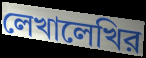
লেখালেখির